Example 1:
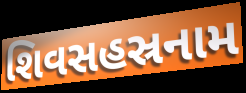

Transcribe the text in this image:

શિવસહસ્રનામ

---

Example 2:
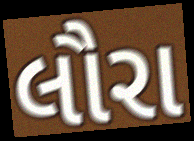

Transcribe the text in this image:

લૌરા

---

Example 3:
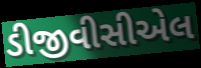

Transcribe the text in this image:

ડીજીવીસીએલ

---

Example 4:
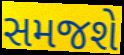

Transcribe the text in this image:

સમજશે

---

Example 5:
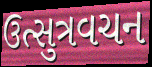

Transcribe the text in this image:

ઉત્સુત્રવચન